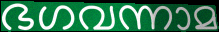
ഭഗവന്നാമ